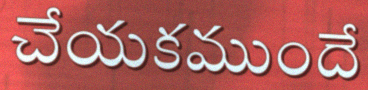
చేయకముందే